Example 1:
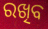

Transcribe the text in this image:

ରଖିବ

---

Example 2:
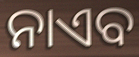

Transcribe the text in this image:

ନାଏବ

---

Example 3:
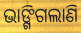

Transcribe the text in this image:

ଭାଙ୍ଗିଗଲାଣି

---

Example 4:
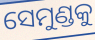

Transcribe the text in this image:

ସେମୁଣ୍ଡକୁ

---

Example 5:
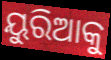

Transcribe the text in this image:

ୟୁରିଆକୁ